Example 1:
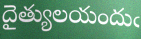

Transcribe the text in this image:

దైత్యులయందుఁ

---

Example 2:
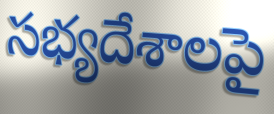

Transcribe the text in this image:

సభ్యదేశాలపై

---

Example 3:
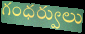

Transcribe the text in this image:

గంధర్వులు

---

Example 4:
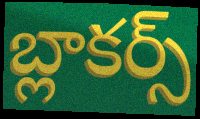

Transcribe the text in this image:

బ్లాకర్స్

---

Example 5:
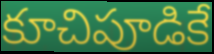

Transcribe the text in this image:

కూచిపూడికే